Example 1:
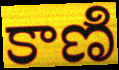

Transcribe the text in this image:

కాణి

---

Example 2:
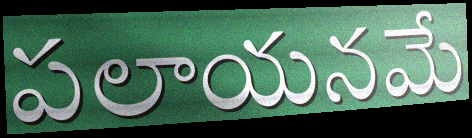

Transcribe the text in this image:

పలాయనమే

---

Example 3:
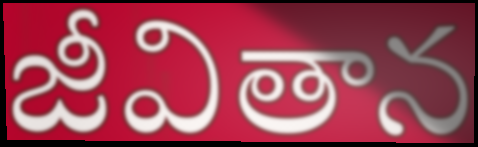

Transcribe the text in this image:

జీవితాన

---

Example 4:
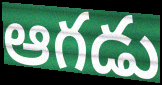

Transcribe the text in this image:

ఆగడు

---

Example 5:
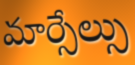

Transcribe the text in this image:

మార్సేల్సు